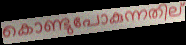
കൊണ്ടുപോകുന്നതില്